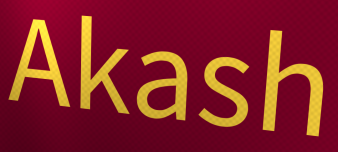
Akash